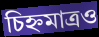
চিহ্নমাত্রও